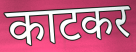
काटकर